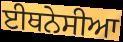
ਈਥਨੇਸੀਆ